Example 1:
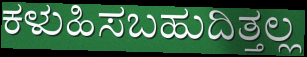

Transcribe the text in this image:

ಕಳುಹಿಸಬಹುದಿತ್ತಲ್ಲ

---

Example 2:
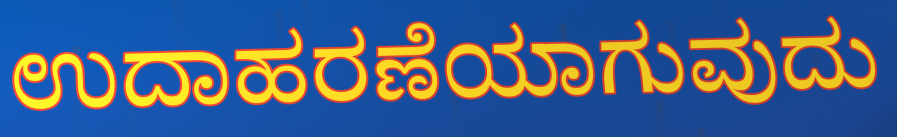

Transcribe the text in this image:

ಉದಾಹರಣೆಯಾಗುವುದು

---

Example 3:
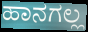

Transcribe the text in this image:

ಹಾನಗಲ್ಲ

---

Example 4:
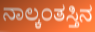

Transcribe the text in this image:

ನಾಲ್ಕಂತಸ್ತಿನ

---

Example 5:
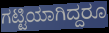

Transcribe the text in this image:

ಗಟ್ಟಿಯಾಗಿದ್ದರೂ